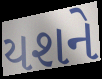
યશને